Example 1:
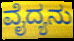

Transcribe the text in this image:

ವೈದ್ಯನು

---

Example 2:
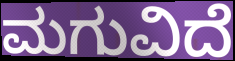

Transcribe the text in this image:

ಮಗುವಿದೆ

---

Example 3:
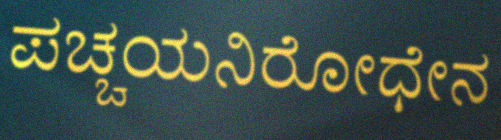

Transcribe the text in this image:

ಪಚ್ಚಯನಿರೋಧೇನ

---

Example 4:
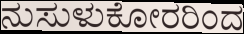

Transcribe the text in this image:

ನುಸುಳುಕೋರರಿಂದ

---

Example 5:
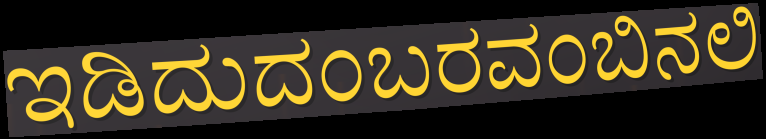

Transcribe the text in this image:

ಇಡಿದುದಂಬರವಂಬಿನಲಿ